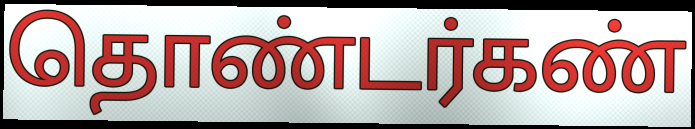
தொண்டர்கண்